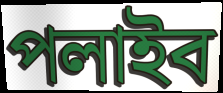
পলাইব